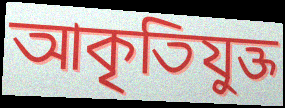
আকৃতিযুক্ত